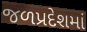
જળપ્રદેશમાં